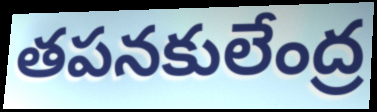
తపనకులేంద్ర